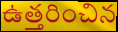
ఉత్తరించిన